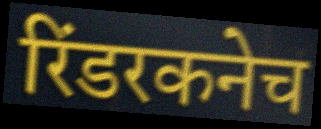
रिंडरकनेच